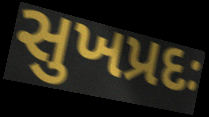
સુખપ્રદઃ